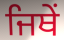
ਜਿਥੇਂ